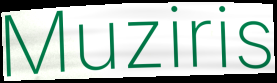
Muziris